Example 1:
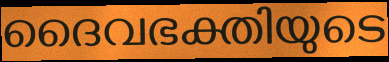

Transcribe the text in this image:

ദൈവഭക്തിയുടെ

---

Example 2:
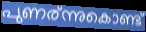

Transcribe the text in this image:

പുണര്ന്നുകൊണ്ട്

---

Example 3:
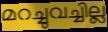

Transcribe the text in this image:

മറച്ചുവച്ചില്ല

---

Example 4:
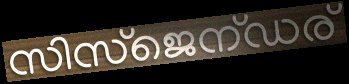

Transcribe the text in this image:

സിസ്ജെന്ഡര്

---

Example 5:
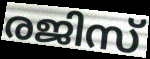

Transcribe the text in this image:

രജിസ്